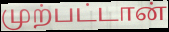
முற்பட்டான்